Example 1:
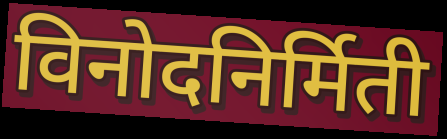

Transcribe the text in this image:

विनोदनिर्मिती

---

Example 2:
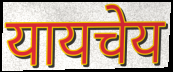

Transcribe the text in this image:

यायचेय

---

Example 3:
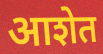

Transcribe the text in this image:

आशेत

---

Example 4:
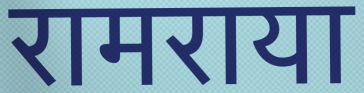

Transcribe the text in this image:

रामराया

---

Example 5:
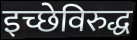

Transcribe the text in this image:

इच्छेविरुद्ध